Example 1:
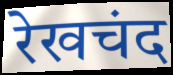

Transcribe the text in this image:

रेखचंद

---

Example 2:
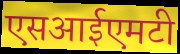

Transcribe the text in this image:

एसआईएमटी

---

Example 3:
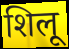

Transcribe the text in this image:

शिलू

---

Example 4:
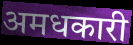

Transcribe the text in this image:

अमधकारी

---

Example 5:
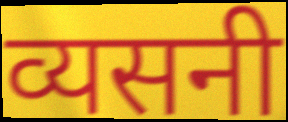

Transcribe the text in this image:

व्यसनी